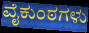
ವೈಕುಂಠಗಳು